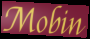
Mobin